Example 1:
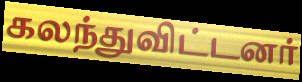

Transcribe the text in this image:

கலந்துவிட்டனர்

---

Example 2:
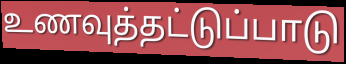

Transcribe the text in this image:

உணவுத்தட்டுப்பாடு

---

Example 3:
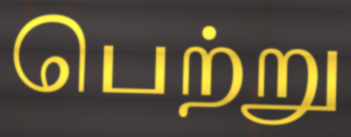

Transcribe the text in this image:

பெற்று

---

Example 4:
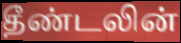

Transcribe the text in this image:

தீண்டலின்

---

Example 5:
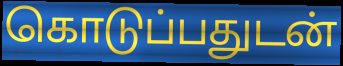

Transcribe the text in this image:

கொடுப்பதுடன்